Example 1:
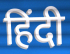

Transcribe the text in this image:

हिंदी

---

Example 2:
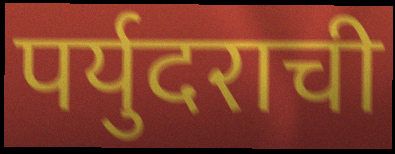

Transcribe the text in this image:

पर्युदराची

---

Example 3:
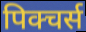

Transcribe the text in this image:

पिक्चर्स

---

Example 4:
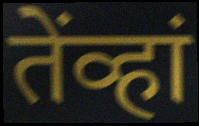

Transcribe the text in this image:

तेंव्हां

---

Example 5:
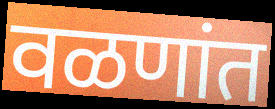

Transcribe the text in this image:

वळणांत